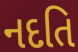
નદતિ